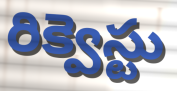
రిక్వెస్టు